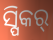
ସ୍ପିକର୍